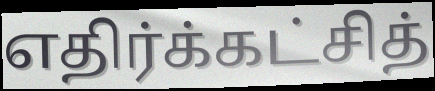
எதிர்க்கட்சித்